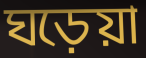
ঘড়েয়া